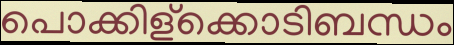
പൊക്കിള്ക്കൊടിബന്ധം